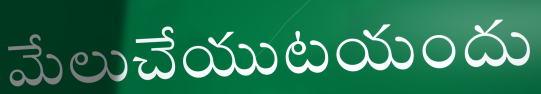
మేలుచేయుటయందు